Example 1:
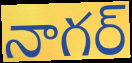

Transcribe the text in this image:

నాగర్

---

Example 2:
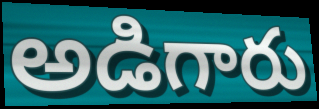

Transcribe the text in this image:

అడిగారు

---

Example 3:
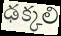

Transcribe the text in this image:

ఢక్కలి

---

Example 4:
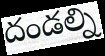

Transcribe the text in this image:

దండల్ని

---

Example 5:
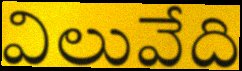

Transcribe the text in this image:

విలువేది